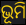
ଭୂମି